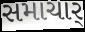
સમાચાર્